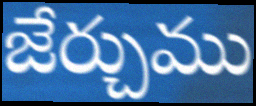
జేర్చుము